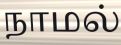
நாமல்